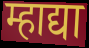
म्हाद्या